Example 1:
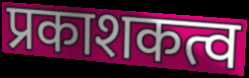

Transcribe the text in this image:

प्रकाशकत्व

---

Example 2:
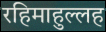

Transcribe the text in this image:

रहिमाहुल्लह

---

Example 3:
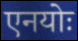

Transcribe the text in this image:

एनयोः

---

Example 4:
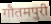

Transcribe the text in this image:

गौतमपुरी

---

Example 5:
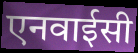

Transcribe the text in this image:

एनवाईसी